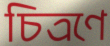
চিত্ৰণে